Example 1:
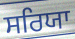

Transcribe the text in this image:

ਸਰਿਯਾ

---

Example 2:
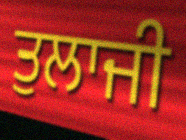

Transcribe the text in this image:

ਤੁਲਾਜੀ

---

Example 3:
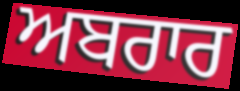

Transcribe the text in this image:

ਅਬਰਾਰ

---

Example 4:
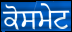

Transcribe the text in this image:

ਕੋਸਮੇਟ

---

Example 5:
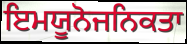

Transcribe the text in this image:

ਇਮਯੂਨੋਜਨਿਕਤਾ